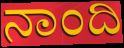
ನಾಂದಿ